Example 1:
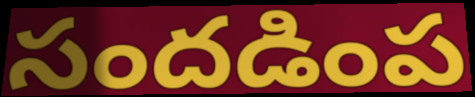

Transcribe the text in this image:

సందడింప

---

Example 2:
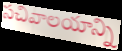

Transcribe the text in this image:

సచివాలయాన్ని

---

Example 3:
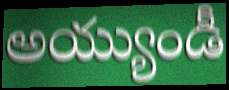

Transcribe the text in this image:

అయ్యుండీ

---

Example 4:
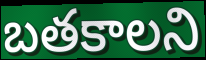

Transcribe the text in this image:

బతకాలని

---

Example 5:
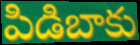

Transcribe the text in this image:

పిడిబాకు